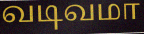
வடிவமா